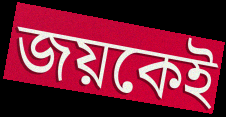
জয়কেই